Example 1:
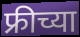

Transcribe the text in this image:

फ्रीच्या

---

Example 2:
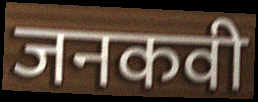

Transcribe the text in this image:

जनकवी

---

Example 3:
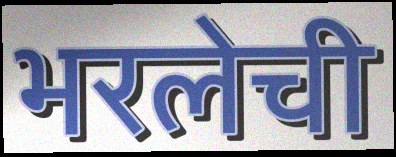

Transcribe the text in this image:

भरलेची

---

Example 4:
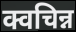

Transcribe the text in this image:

क्वचिन्न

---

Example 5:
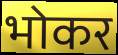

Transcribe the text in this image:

भोकर